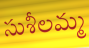
సుశీలమ్మ